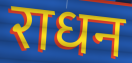
राधन